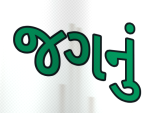
જગનું